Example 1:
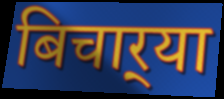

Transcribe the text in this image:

बिचार्या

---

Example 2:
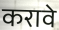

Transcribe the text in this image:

करावे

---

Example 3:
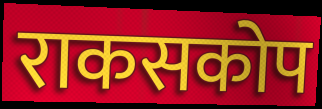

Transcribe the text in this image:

राकसकोप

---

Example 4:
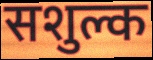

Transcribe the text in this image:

सशुल्क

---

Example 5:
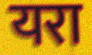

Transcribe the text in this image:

यरा